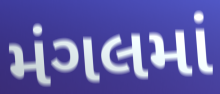
મંગલમાં